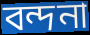
বন্দনা